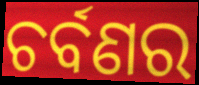
ଚର୍ବଣର